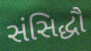
સંસિદ્ધૌ